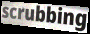
scrubbing